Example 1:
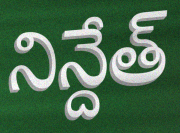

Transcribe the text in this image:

నిన్దేత్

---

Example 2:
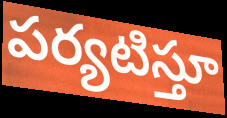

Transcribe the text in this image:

పర్యటిస్తూ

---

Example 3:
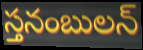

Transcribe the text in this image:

స్తనంబులన్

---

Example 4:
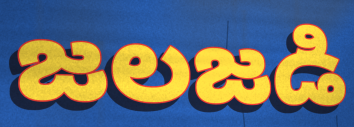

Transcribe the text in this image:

జలజడి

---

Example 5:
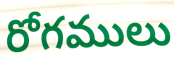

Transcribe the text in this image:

రోగములు